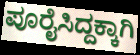
ಪೂರೈಸಿದ್ದಕ್ಕಾಗಿ